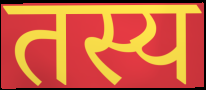
तस्य